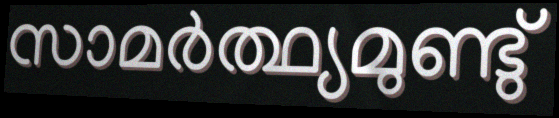
സാമർത്ഥ്യമുണ്ടു്